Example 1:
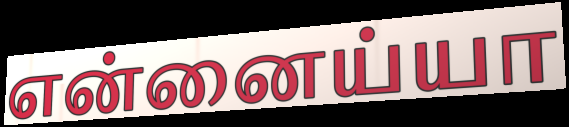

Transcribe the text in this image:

என்னைய்யா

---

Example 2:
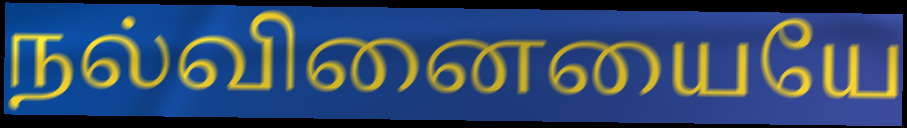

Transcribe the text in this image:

நல்வினையையே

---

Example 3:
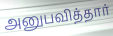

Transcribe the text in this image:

அனுபவித்தார்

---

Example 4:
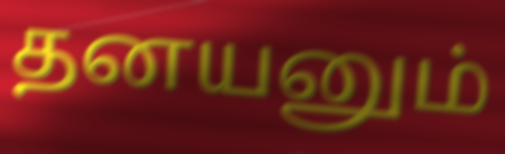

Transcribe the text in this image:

தனயனும்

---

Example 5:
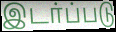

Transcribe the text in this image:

இடர்ப்படு